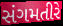
સંગમતીરે